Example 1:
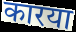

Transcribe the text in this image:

कारया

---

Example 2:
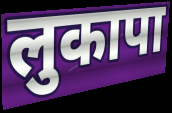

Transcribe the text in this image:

लुकापा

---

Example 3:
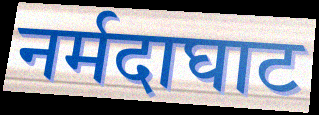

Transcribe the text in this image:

नर्मदाघाट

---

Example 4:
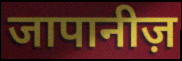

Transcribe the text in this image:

जापानीज़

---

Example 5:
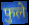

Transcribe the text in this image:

फुले